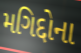
મગિદ્દોના